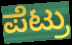
ಪೆಟ್ರು